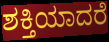
ಶಕ್ತಿಯಾದರೆ